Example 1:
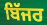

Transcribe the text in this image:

ਬਿੱਜਰ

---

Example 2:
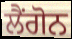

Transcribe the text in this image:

ਲੈਂਗੋਨ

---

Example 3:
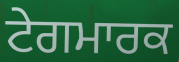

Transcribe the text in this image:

ਟੇਗਮਾਰਕ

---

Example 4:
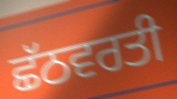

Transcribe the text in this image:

ਛੱਠਵਰਤੀ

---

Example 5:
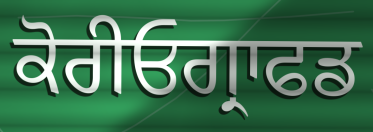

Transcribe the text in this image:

ਕੋਰੀਓਗ੍ਰਾਫਡ